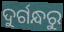
ଦୁର୍ଗନ୍ଧରୁ